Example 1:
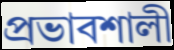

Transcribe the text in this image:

প্রভাবশালী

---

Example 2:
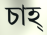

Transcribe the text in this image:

চাহ্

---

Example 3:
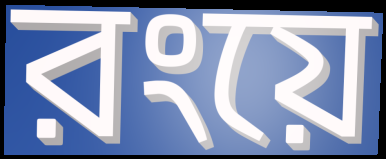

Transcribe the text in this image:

রংয়ে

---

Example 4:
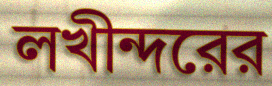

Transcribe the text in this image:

লখীন্দরের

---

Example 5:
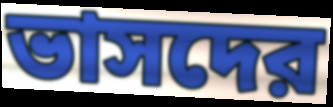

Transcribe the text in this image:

ভাসদের